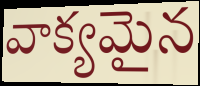
వాక్యమైన